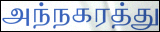
அந்நகரத்து